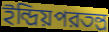
ইন্দ্রিয়পরতন্ত্র